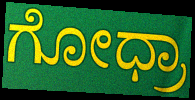
ಗೋಧ್ರಾ